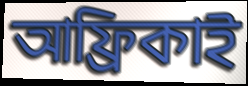
আফ্রিকাই